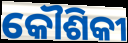
କୌଶିକୀ